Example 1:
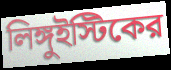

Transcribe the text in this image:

লিঙ্গুইস্টিকের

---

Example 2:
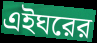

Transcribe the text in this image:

এইঘরের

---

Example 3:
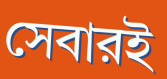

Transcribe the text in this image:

সেবারই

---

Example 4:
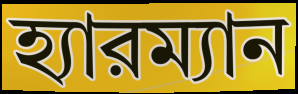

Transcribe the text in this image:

হ্যারম্যান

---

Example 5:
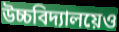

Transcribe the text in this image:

উচ্চবিদ্যালয়েও